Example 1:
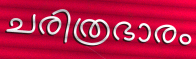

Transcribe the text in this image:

ചരിത്രഭാരം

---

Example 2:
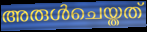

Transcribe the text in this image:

അരുൾചെയ്തത്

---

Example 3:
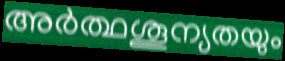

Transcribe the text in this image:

അർത്ഥശൂന്യതയും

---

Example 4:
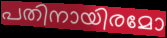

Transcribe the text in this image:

പതിനായിരമോ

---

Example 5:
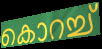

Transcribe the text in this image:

കൊറച്ച്